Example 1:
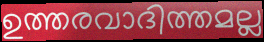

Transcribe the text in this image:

ഉത്തരവാദിത്തമല്ല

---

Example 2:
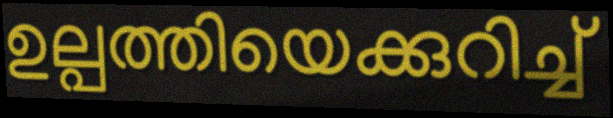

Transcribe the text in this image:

ഉല്പത്തിയെക്കുറിച്ച്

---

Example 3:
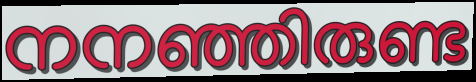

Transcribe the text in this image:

നനഞ്ഞിരുണ്ട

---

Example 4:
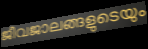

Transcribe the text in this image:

ജീവജാലങ്ങളുടെയും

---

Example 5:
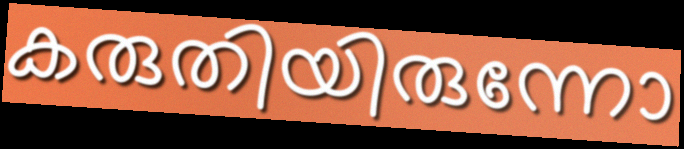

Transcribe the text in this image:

കരുതിയിരുന്നോ